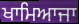
ਖਾਮਿਆਜਾ